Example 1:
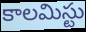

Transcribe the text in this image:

కాలమిస్టు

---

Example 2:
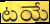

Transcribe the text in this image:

టయే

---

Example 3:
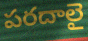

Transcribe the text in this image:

పరదాలై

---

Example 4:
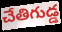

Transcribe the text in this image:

చేతిగుడ్డ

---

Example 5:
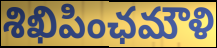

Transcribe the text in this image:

శిఖిపింఛమౌళి